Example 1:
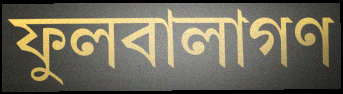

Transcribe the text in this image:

ফুলবালাগণ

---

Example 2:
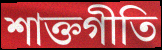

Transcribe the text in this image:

শাক্তগীতি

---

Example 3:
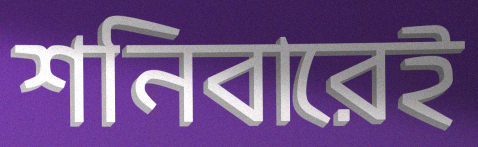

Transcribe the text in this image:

শনিবারেই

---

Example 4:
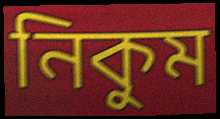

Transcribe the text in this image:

নিকুম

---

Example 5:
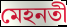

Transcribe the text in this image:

মেহনতী